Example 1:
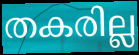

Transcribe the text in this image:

തകരില്ല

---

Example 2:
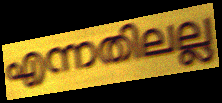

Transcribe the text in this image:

എന്നതിലല്ല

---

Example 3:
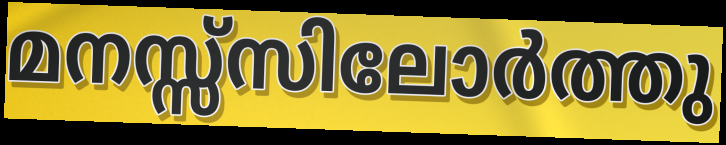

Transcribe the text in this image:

മനസ്സ്സിലോർത്തു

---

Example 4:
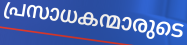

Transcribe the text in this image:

പ്രസാധകന്മാരുടെ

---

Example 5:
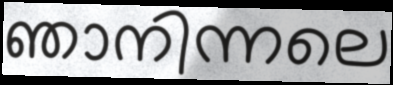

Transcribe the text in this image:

ഞാനിന്നലെ